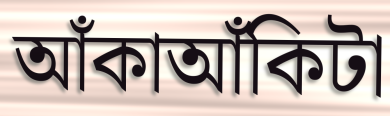
আঁকাআঁকিটা